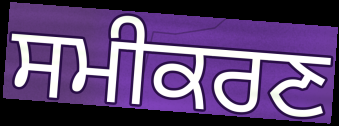
ਸਮੀਕਰਣ